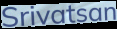
Srivatsan